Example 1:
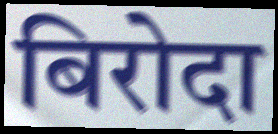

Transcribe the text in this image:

बिरोदा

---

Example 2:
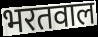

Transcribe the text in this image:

भरतवाल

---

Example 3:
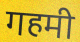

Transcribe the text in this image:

गहमी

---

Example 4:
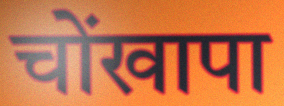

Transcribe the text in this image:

चोंखापा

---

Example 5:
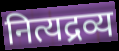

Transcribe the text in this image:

नित्यद्रव्य